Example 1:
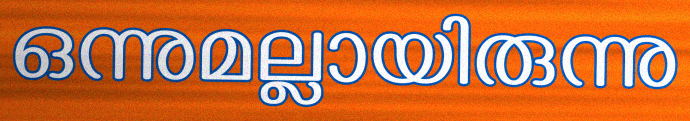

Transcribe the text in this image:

ഒന്നുമല്ലായിരുന്നു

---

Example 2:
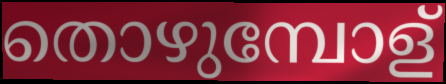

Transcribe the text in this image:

തൊഴുമ്പോള്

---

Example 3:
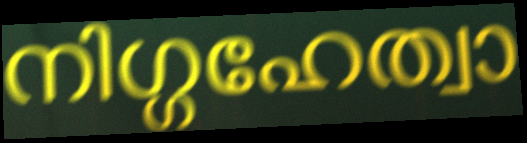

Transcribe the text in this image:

നിഗ്ഗഹേത്വാ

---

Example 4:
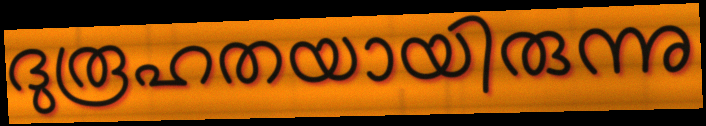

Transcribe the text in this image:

ദുരൂഹതയായിരുന്നു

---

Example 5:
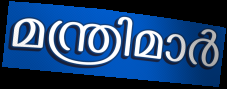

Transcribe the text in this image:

മന്ത്രിമാർ